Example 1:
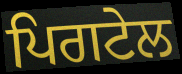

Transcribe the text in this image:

ਪਿਗਟੇਲ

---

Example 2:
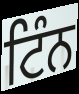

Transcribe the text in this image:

ਟਿੰਨ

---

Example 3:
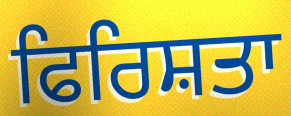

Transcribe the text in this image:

ਫਿਰਿਸ਼ਤਾ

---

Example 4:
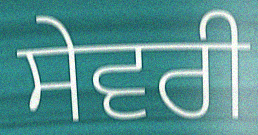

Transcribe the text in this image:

ਸੇਵਰੀ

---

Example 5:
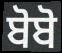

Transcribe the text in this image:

ਬੋਬੋ